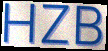
HZB